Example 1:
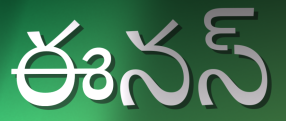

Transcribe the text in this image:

ఈనస్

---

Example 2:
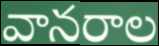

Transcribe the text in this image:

వానరాల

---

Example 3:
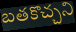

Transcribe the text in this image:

బతకొచ్చని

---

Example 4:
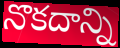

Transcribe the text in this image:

నొకదాన్ని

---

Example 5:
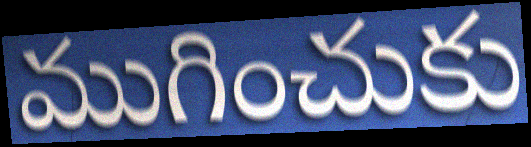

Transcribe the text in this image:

ముగించుకు